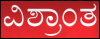
ವಿಶ್ರಾಂತ